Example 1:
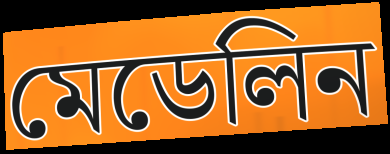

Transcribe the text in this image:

মেডেলিন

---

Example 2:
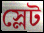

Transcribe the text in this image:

স্লেট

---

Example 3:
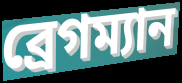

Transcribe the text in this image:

ব্রেগম্যান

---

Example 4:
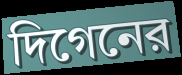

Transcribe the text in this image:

দিগেনের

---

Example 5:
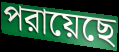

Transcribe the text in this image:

পরায়েছে